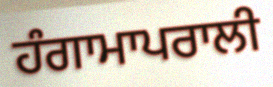
ਹੰਗਾਮਾਪਰਾਲੀ